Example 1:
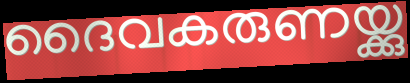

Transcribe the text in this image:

ദൈവകരുണയ്ക്കു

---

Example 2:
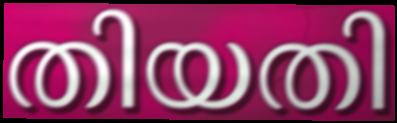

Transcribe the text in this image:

തിയതി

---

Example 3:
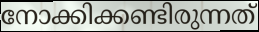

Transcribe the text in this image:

നോക്കിക്കണ്ടിരുന്നത്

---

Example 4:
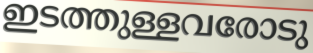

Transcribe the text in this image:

ഇടത്തുള്ളവരോടു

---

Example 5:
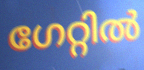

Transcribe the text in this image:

ഗേറ്റിൽ